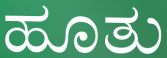
ಹೂತು